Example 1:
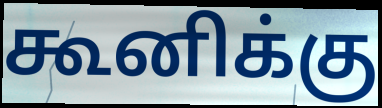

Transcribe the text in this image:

கூனிக்கு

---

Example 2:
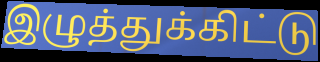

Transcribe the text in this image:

இழுத்துக்கிட்டு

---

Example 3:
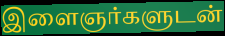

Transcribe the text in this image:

இளைஞர்களுடன்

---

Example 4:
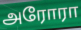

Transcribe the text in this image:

அரோரா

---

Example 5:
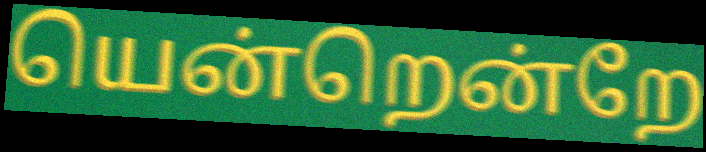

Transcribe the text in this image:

யென்றென்றே